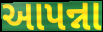
આપન્ના